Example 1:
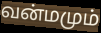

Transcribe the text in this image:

வன்மமும்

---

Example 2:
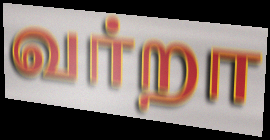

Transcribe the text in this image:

வர்றா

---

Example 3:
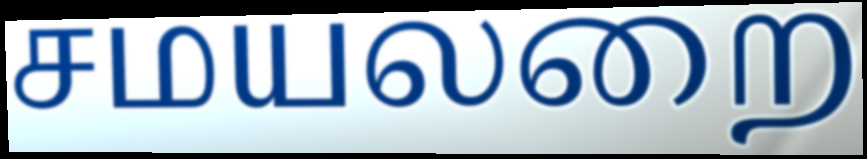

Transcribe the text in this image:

சமயலறை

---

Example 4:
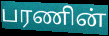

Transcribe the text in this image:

பரணின்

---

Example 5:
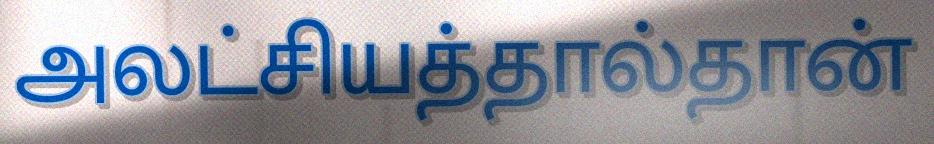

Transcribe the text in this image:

அலட்சியத்தால்தான்